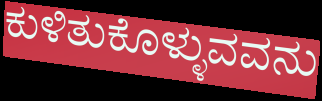
ಕುಳಿತುಕೊಳ್ಳುವವನು